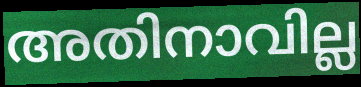
അതിനാവില്ല